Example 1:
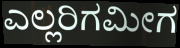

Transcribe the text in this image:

ಎಲ್ಲರಿಗಮೀಗ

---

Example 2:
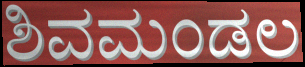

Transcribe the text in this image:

ಶಿವಮಂಡಲ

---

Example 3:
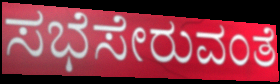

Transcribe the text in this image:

ಸಭೆಸೇರುವಂತೆ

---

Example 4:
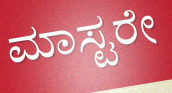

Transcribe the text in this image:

ಮಾಸ್ಟರೇ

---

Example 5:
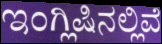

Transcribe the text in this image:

ಇಂಗ್ಲಿಷಿನಲ್ಲಿವೆ